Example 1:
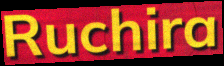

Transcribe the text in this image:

Ruchira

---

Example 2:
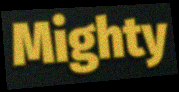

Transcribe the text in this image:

Mighty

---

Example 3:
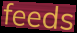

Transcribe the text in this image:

feeds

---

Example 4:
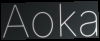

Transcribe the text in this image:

Aoka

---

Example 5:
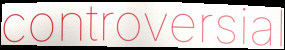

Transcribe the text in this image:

controversial